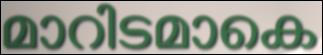
മാറിടമാകെ